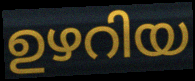
ഉഴറിയ